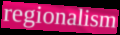
regionalism